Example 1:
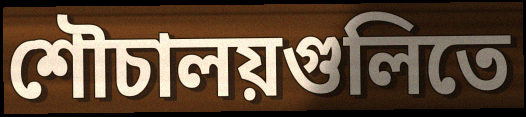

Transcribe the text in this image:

শৌচালয়গুলিতে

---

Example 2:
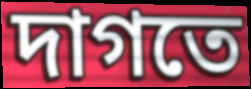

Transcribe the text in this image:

দাগতে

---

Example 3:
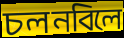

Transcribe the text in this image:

চলনবিলে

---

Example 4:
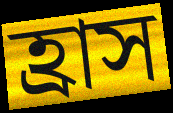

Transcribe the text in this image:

হ্রাস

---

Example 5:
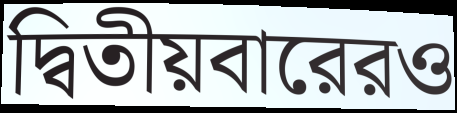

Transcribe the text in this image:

দ্বিতীয়বারেরও